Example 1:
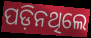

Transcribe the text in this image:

ପଡ଼ିନଥିଲେ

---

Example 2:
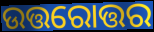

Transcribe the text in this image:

ଉତ୍ତରୋତ୍ତର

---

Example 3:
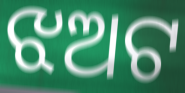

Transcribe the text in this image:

ଝଅଟ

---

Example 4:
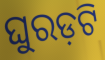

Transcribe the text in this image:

ଘୁରଡ଼ଟି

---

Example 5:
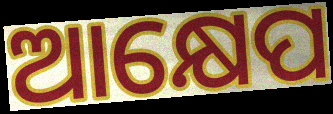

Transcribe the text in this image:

ଆକ୍ଷେପ